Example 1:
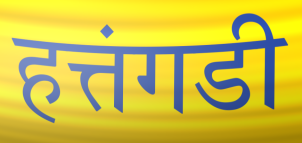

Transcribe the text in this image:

हत्तंगडी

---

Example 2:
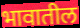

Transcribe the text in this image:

भावातील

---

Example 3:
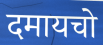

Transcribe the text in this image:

दमायचो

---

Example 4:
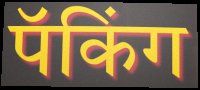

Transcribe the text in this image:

पॅकिंग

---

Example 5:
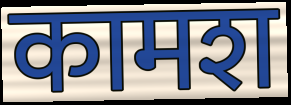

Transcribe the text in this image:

कामश